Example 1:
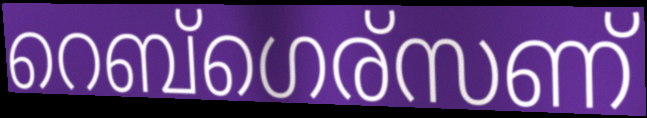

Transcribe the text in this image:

റെബ്ഗെര്സണ്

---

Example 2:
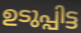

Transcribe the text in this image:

ഉടുപ്പിട്ട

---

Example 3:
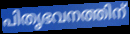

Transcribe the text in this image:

പിതൃഭവനത്തിന്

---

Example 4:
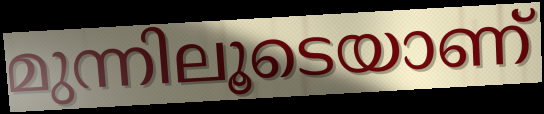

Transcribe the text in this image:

മുന്നിലൂടെയാണ്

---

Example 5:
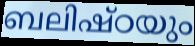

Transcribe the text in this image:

ബലിഷ്ഠയും